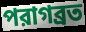
পরাগব্রত